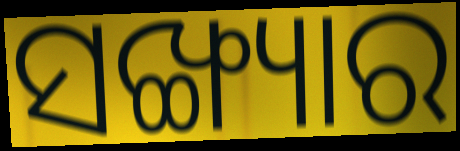
ସଙ୍ଖ୍ୟାର